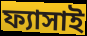
ফ্যাসাই